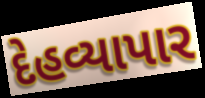
દેહવ્યાપાર